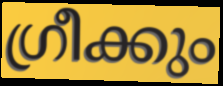
ഗ്രീക്കും